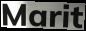
Marit